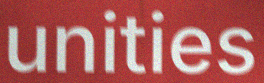
unities